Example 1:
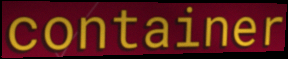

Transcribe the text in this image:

container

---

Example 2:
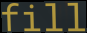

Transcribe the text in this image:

fill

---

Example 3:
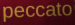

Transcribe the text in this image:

peccato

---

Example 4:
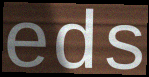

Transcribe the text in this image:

eds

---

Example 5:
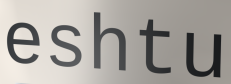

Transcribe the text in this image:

eshtu